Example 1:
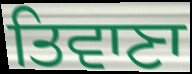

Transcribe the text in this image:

ਤਿਵਾਣਾ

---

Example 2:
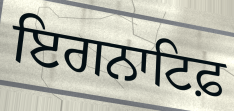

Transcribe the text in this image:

ਇਗਨਾਟਿਫ਼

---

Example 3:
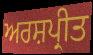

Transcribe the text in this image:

ਅਰਸ਼ਪ੍ਰੀਤ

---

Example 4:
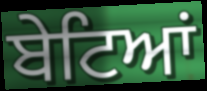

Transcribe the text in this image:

ਬੇਟਿਆਂ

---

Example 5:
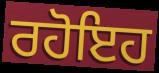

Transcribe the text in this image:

ਰਹੋਇਹ